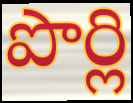
పొర్లి